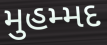
મુહમ્મદ